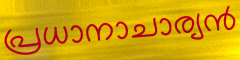
പ്രധാനാചാര്യൻ